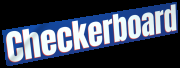
Checkerboard